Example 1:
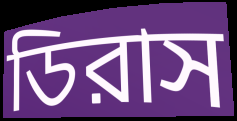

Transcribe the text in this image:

ডিরাস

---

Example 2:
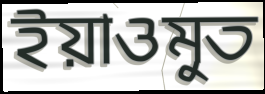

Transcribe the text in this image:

ইয়াওমুত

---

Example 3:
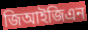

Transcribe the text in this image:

জিআইজিএন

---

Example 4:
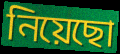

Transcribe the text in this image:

নিয়েছো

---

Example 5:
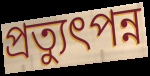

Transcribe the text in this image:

প্রত্যুৎপন্ন